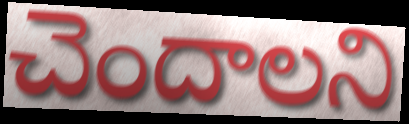
చెందాలని